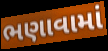
ભણાવામાં